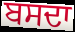
ਬਸਦਾ